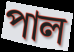
পাল